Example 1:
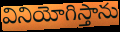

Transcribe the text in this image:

వినియోగిస్తాను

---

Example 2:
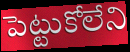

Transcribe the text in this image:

పెట్టుకోలేని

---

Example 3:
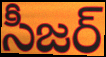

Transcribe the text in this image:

సీజర్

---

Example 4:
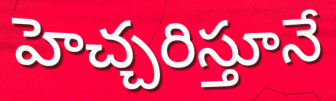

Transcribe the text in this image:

హెచ్చరిస్తూనే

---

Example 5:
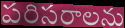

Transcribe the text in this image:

పరిసరాలను